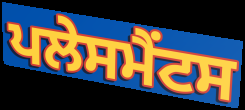
ਪਲੇਸਮੈਂਟਸ